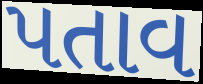
પતાવ